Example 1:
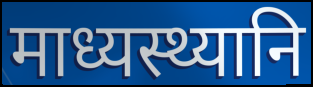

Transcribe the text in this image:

माध्यस्थ्यानि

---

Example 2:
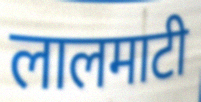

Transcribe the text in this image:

लालमाटी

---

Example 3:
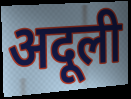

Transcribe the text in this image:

अदूली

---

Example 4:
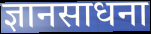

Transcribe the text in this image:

ज्ञानसाधना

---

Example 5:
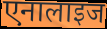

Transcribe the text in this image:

एनालाइज